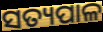
ସତ୍ୟପାଳ